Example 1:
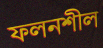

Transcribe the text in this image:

ফলনশীল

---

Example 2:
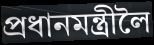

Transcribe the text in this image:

প্ৰধানমন্ত্ৰীলৈ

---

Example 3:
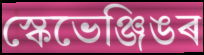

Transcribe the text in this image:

স্কেভেঞ্জিঙৰ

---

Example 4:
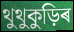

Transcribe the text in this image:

থুথুকুড়িৰ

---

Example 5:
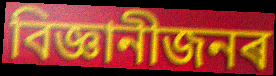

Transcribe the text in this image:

বিজ্ঞানীজনৰ